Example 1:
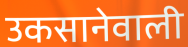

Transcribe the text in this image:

उकसानेवाली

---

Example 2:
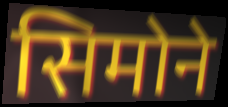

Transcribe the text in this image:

सिमोने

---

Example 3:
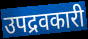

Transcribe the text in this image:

उपद्रवकारी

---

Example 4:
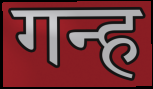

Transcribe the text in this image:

गन्ह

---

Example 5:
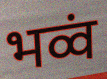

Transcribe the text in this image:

भव्वं